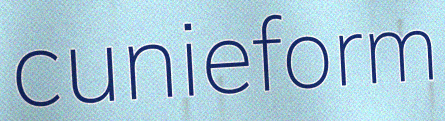
cunieform